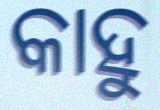
କାହୁ